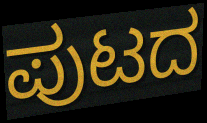
ಪುಟದ